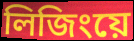
লিজিংয়ে